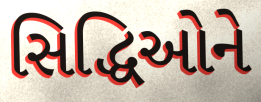
સિદ્ધિઓને